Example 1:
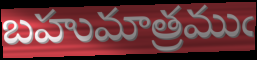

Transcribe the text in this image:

బహుమాత్రముఁ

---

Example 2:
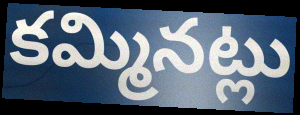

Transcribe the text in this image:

కమ్మినట్లు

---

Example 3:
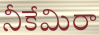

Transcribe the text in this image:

నీకేమిరా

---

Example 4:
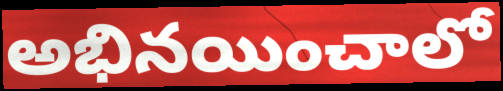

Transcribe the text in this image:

అభినయించాలో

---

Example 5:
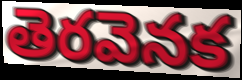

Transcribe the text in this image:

తెరవెనక